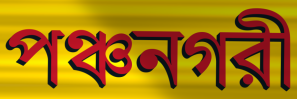
পঞ্চনগরী